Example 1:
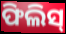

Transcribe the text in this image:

ଫିଲିସ୍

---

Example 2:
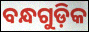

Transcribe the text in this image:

ବନ୍ଧଗୁଡ଼ିକ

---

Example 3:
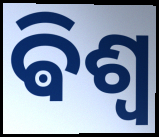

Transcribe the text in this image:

ଵିଶ୍ୱ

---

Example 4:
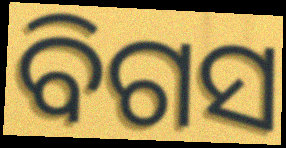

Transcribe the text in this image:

ବିଗସ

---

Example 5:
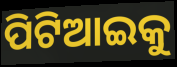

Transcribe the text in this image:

ପିଟିଆଇକୁ